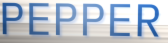
PEPPER